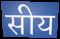
सीय